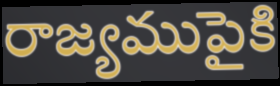
రాజ్యముపైకి